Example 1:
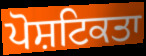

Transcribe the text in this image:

ਪੋਸ਼ਟਿਕਤਾ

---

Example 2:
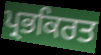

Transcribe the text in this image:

ਪ੍ਰਭਕਿਰਤ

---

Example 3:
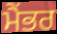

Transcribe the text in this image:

ਮੈਂਭਰ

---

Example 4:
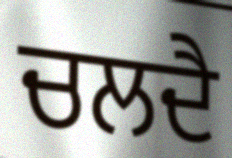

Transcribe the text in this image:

ਚਲਦੈ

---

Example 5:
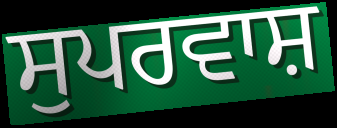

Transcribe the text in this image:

ਸੁਪਰਵਾਸ਼